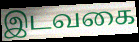
இடவகை